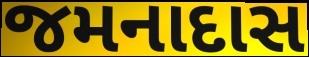
જમનાદાસ